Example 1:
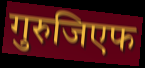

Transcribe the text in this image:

गुरुजिएफ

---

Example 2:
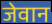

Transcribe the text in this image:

जेवान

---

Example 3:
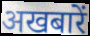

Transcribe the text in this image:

अखबारें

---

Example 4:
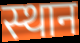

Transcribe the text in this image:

स्‍थान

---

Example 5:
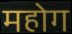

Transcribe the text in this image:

महोग